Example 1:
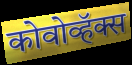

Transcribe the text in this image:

कोवोव्हॅक्स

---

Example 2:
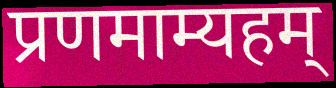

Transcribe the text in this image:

प्रणमाम्यहम्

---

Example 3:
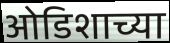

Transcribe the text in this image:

ओडिशाच्या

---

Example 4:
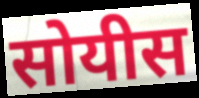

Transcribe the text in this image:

सोयीस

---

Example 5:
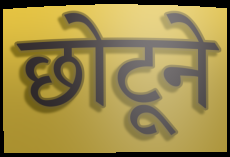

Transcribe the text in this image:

छोटूने